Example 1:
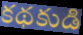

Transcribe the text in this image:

కథకుడి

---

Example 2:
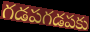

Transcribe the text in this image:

గడపగడపకు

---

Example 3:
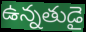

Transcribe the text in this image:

ఉన్నతుడై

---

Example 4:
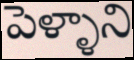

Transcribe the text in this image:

పెళ్ళాని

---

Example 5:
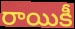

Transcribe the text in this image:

రాయికీ